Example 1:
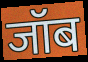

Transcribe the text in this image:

जॉब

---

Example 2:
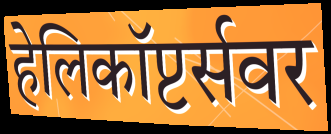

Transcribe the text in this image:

हेलिकॉप्टर्सवर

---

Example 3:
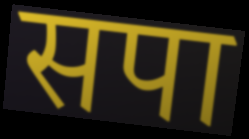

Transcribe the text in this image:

सपा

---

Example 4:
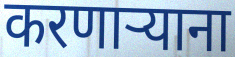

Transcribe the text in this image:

करणाऱ्याना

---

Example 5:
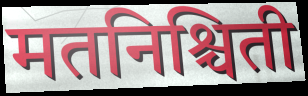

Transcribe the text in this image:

मतनिश्चिती